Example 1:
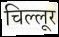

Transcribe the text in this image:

चिल्लूर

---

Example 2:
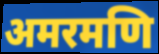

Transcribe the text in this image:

अमरमणि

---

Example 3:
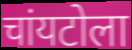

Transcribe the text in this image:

चांयटोला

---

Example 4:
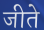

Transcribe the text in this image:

जीते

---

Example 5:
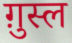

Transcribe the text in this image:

ग़ुस्ल